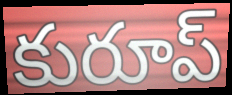
కురూప్